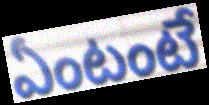
ఏంటంటే